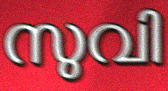
സുവി